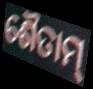
ଶୈତାମ୍